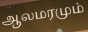
ஆலமரமும்